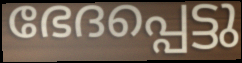
ഭേദപ്പെട്ടു